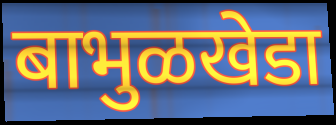
बाभुळखेडा